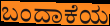
ಬಂದಾಕೆಯ